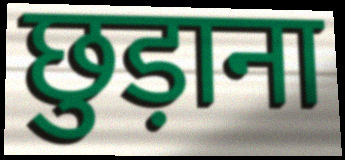
छुड़ाना